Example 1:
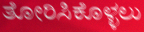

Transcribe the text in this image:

ತೋರಿಸಿಕೊಳ್ಳಲು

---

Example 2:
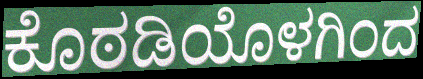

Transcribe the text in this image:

ಕೊಠಡಿಯೊಳಗಿಂದ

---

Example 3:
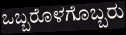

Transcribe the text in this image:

ಒಬ್ಬರೊಳಗೊಬ್ಬರು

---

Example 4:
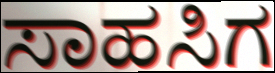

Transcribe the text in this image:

ಸಾಹಸಿಗ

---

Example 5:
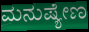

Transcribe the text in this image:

ಮನುಷ್ಯೇಣ